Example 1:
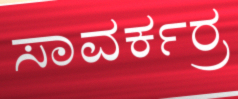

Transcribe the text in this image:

ಸಾವರ್ಕರ್ರ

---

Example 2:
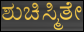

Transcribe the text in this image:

ಶುಚಿಸ್ಮಿತೇ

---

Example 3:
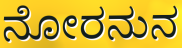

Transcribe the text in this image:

ನೋರನುನ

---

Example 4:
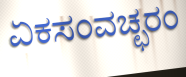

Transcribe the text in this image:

ಏಕಸಂವಚ್ಛರಂ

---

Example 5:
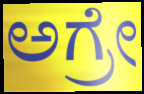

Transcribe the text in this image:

ಅಗ್ರೇ